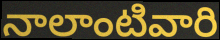
నాలాంటివారి